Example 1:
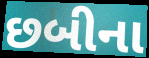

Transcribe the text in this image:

છબીના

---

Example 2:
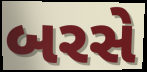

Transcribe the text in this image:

બરસે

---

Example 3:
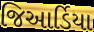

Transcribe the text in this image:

જિઆર્ડિયા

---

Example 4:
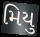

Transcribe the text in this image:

મિયુ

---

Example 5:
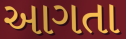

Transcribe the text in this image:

આગતા